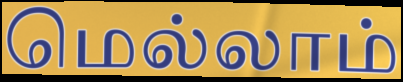
மெல்லாம்